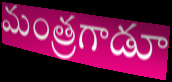
మంత్రగాడూ